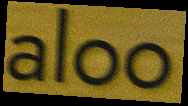
aloo